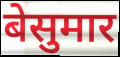
बेसुमार